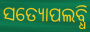
ସତ୍ୟୋପଲବ୍ଧି